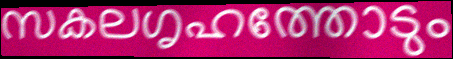
സകലഗൃഹത്തോടും